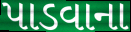
પાડવાના